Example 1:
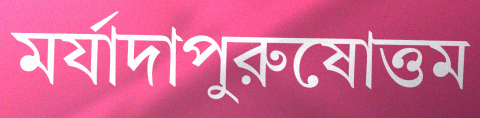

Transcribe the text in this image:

মর্যাদাপুরুষোত্তম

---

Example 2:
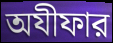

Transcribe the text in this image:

অযীফার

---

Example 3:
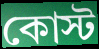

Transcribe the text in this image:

কোস্ট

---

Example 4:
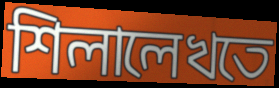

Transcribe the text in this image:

শিলালেখতে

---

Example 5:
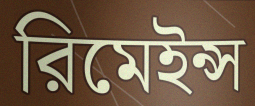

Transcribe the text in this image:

রিমেইন্স